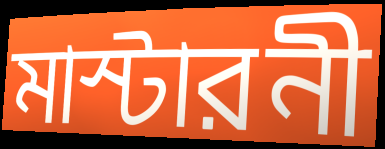
মাস্টারনী